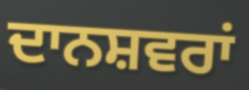
ਦਾਨਸ਼ਵਰਾਂ